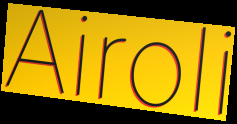
Airoli